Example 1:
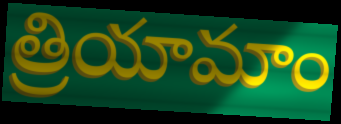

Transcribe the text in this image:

త్రియామాం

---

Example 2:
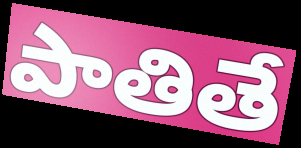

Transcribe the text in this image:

పాతితే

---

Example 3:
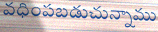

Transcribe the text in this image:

వధింపబడుచున్నాము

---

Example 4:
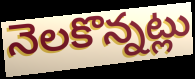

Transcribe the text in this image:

నెలకొన్నట్లు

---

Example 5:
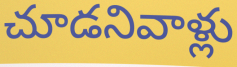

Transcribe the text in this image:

చూడనివాళ్లు